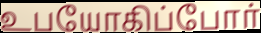
உபயோகிப்போர்